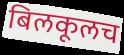
बिलकूलच